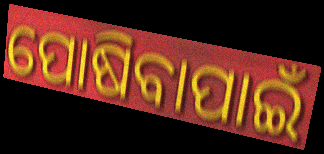
ପୋଷିବାପାଇଁ